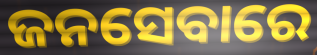
ଜନସେବାରେ